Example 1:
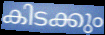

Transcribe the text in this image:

കിടക്കും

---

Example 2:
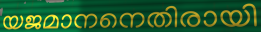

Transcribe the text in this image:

യജമാനനെതിരായി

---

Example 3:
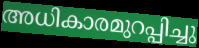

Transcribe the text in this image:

അധികാരമുറപ്പിച്ചു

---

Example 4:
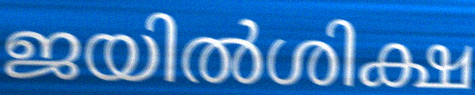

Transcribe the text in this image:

ജയിൽശിക്ഷ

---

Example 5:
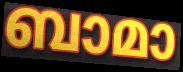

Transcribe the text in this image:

ബാമാ